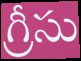
గ్రీసు